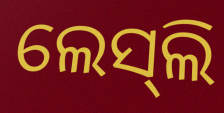
ଲେସ୍‍ଲି